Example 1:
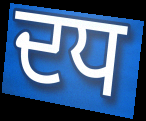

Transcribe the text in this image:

ਦਧ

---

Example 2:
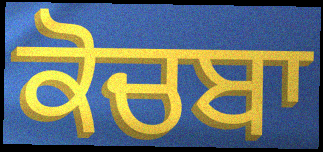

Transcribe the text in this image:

ਕੋਚਬਾ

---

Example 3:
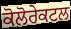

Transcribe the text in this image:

ਕੋਲੋਰੇਕਟਲ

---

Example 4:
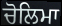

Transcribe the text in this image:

ਚੋਲਿਮਾ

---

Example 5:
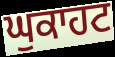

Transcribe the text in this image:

ਘੁਕਾਹਟ